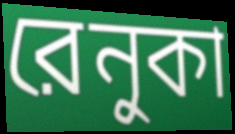
রেনুকা